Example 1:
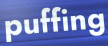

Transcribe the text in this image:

puffing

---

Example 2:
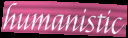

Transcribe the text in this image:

humanistic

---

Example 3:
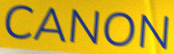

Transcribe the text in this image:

CANON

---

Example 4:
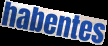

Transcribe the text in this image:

habentes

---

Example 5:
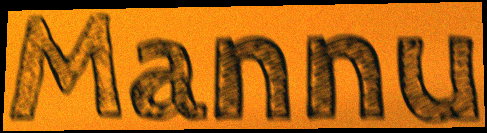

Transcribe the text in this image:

Mannu